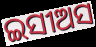
ଇସୀଅସ